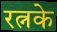
रत्नके